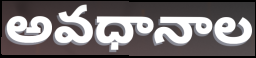
అవధానాల